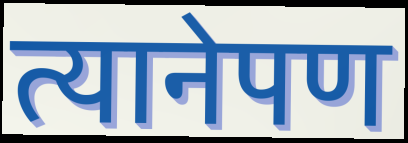
त्यानेपण